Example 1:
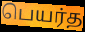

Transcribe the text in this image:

பெயர்த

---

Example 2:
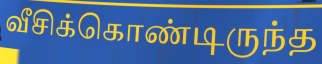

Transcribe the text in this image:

வீசிக்கொண்டிருந்த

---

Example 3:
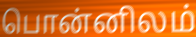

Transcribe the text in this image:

பொன்னிலம்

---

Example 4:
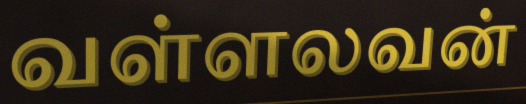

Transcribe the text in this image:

வள்ளலவன்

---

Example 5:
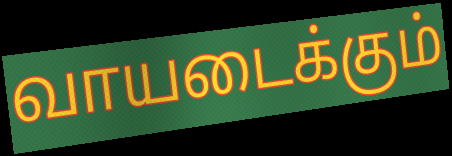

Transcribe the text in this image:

வாயடைக்கும்